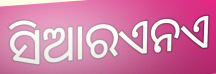
ସିଆରଏନଏ